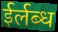
ईर्लब्ध